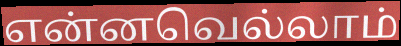
என்னவெல்லாம்